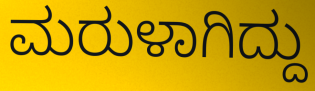
ಮರುಳಾಗಿದ್ದು